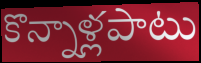
కొన్నాళ్లపాటు